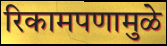
रिकामपणामुळे